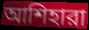
আশিহারা